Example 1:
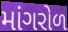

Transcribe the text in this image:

માંગરોળ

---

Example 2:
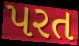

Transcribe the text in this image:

પરત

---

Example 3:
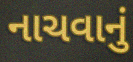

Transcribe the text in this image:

નાચવાનું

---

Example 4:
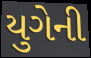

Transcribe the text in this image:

યુગેની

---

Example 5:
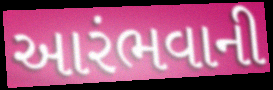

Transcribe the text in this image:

આરંભવાની